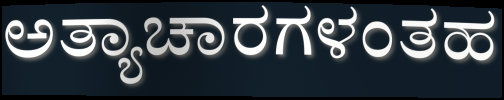
ಅತ್ಯಾಚಾರಗಳಂತಹ